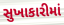
સુખાકારીમાં